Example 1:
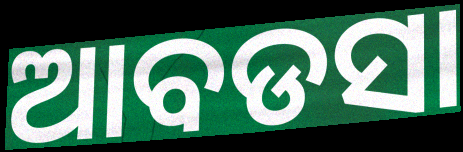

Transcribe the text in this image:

ଆବଡସା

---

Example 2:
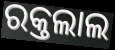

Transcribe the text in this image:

ରକ୍ତଲାଲ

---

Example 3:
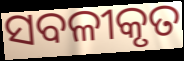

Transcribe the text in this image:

ସବଳୀକୃତ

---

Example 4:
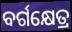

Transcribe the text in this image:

ବର୍ଗକ୍ଷେତ୍ର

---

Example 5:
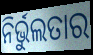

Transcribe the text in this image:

ନିର୍ଭୁଲତାର